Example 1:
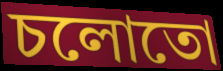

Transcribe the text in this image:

চলোতো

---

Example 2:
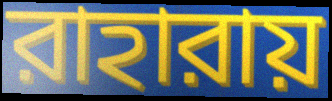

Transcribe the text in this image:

রাহারায়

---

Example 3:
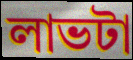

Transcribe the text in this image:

লাভটা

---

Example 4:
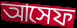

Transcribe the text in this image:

আসেফ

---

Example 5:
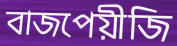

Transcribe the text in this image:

বাজপেয়ীজি